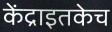
केंद्राइतकेच